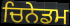
ਚਿਨੇਡਮ